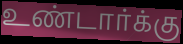
உண்டார்க்கு